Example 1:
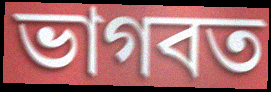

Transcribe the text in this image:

ভাগবত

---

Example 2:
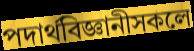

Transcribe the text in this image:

পদাৰ্থবিজ্ঞানীসকলে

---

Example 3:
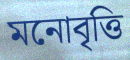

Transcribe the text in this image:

মনোবৃত্তি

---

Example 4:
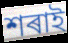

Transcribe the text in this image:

শৰাই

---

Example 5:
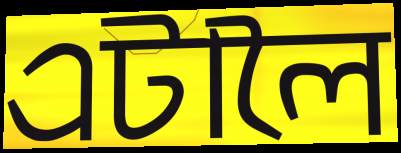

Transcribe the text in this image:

এটালৈ